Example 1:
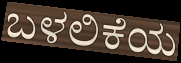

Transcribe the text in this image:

ಬಳಲಿಕೆಯ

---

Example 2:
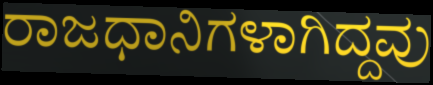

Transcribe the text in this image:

ರಾಜಧಾನಿಗಳಾಗಿದ್ದವು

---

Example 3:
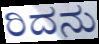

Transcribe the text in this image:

ರಿದನು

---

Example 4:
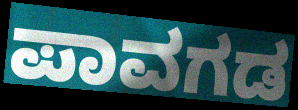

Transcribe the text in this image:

ಪಾವಗಡ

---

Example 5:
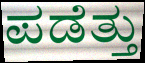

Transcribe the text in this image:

ಪಡೆತ್ತು